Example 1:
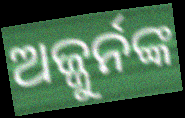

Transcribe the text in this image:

ଅଜ୍ଜୁର୍ନଙ୍କ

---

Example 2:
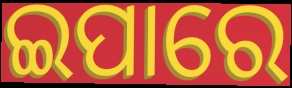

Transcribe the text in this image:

ଇପାରେ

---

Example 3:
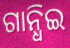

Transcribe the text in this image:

ଗାନ୍ଧିଇ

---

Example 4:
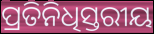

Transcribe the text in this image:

ପ୍ରତିନିଧିସ୍ତରୀୟ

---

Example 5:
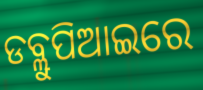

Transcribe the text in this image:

ଡବ୍ଲୁପିଆଇରେ